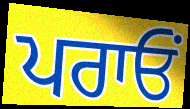
ਪਰਾਓਂ